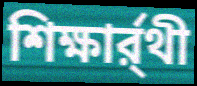
শিক্ষার্র্থী